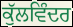
ਕੁੱਲਵਿੰਦਰ